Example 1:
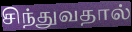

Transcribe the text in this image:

சிந்துவதால்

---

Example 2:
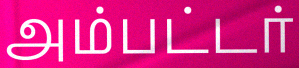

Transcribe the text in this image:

அம்பட்டர்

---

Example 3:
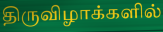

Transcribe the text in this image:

திருவிழாக்களில்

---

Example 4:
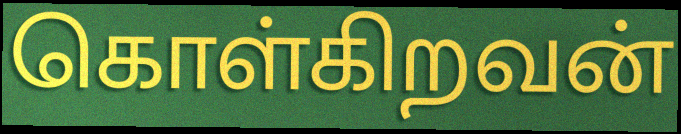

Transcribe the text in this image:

கொள்கிறவன்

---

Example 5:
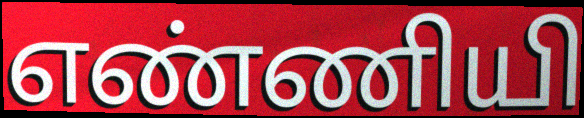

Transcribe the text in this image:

எண்ணியி